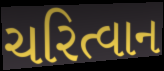
ચરિત્વાન